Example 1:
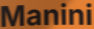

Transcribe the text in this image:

Manini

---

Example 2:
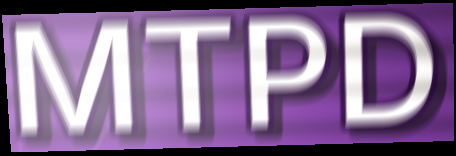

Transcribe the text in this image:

MTPD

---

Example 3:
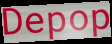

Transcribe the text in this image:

Depop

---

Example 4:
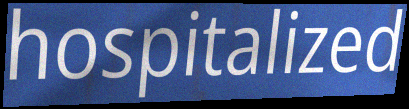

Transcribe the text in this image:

hospitalized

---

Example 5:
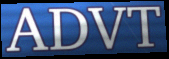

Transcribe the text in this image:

ADVT